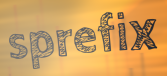
sprefix